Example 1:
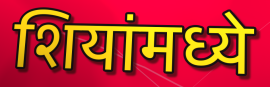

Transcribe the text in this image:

शियांमध्ये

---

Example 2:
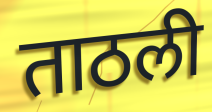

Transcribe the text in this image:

ताठली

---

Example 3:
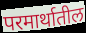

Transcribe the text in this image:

परमार्थातील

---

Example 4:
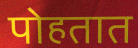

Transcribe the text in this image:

पोहतात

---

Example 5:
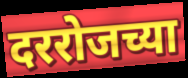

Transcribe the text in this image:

दररोजच्या